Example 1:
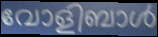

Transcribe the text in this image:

വോളിബാൾ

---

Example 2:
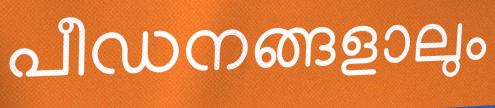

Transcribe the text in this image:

പീഡനങ്ങളാലും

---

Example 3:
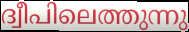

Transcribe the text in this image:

ദ്വീപിലെത്തുന്നു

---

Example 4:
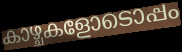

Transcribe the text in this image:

കാഴ്ചകളോടൊപ്പം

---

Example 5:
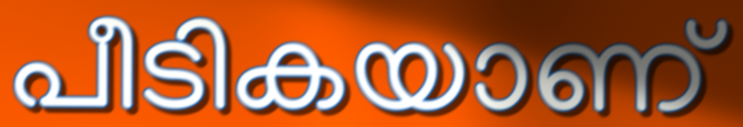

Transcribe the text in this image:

പീടികയാണ്